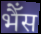
भैँस